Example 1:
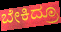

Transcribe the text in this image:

ಬೇಕಿದ್ರೂ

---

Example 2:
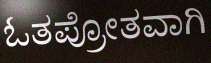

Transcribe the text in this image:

ಓತಪ್ರೋತವಾಗಿ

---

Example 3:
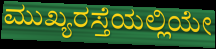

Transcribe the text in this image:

ಮುಖ್ಯರಸ್ತೆಯಲ್ಲಿಯೇ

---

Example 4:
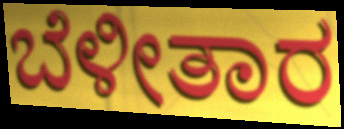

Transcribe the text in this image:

ಬೆಳೀತಾರ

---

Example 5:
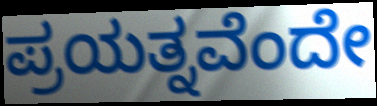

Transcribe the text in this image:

ಪ್ರಯತ್ನವೆಂದೇ